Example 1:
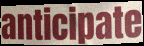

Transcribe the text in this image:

anticipate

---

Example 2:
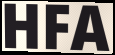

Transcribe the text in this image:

HFA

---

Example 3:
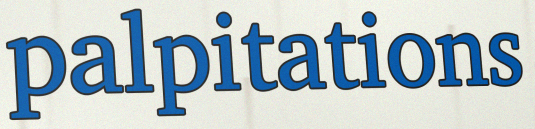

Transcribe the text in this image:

palpitations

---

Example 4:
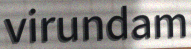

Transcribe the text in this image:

virundam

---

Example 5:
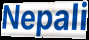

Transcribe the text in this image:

Nepali